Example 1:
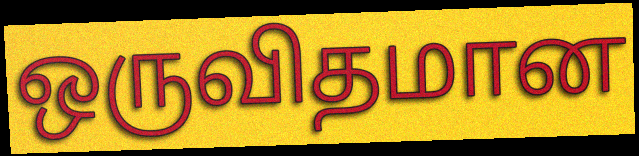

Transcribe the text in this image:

ஒருவிதமான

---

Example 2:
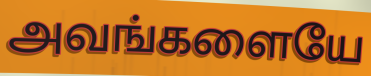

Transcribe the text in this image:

அவங்களையே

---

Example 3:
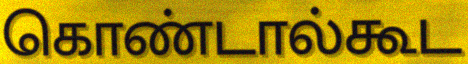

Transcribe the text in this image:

கொண்டால்கூட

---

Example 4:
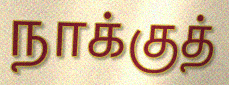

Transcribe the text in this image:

நாக்குத்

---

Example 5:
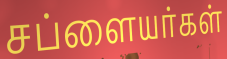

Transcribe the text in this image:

சப்ளையர்கள்